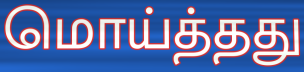
மொய்த்தது